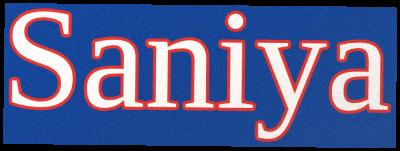
Saniya